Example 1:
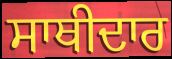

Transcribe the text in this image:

ਸਾਥੀਦਾਰ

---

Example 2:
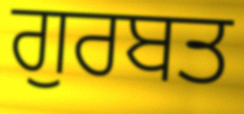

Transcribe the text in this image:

ਗੁਰਬਤ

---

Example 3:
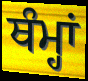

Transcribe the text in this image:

ਥੰਮ੍ਹਾਂ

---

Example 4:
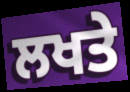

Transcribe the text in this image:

ਲਖਤੇ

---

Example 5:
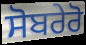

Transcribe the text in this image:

ਸੋਬਰੇਰੋ